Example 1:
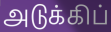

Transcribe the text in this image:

அடுக்கிப்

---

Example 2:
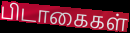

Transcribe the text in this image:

பிடாகைகள்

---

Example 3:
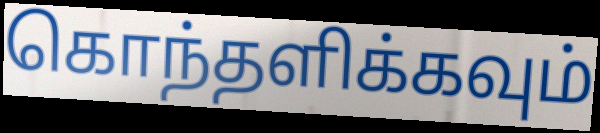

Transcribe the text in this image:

கொந்தளிக்கவும்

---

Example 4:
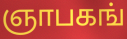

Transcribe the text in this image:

ஞாபகங்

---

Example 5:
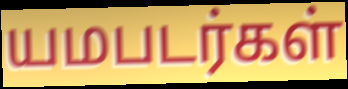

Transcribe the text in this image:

யமபடர்கள்